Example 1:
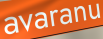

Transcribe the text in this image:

avaranu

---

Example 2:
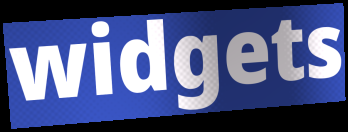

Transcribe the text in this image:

widgets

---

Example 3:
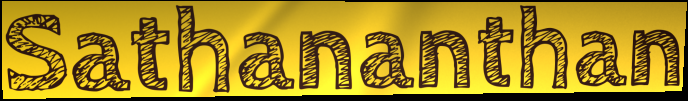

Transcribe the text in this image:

Sathananthan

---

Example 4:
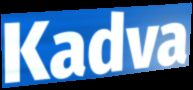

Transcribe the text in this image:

Kadva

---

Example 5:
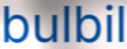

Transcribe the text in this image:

bulbil